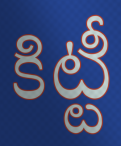
కిట్టీ